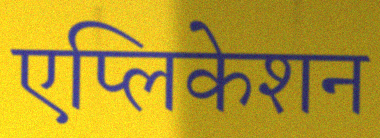
एप्लिकेशन